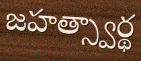
జహత్స్వార్థ